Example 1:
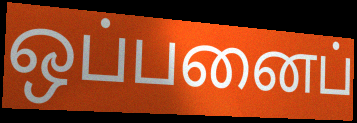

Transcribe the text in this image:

ஒப்பனைப்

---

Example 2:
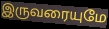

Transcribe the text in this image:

இருவரையுமே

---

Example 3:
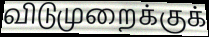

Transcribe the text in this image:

விடுமுறைக்குக்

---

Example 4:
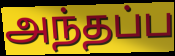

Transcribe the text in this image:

அந்தப்ப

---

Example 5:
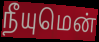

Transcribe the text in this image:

நீயுமென்